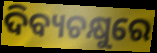
ଦିବ୍ୟଚକ୍ଷୁରେ